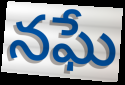
నఘే